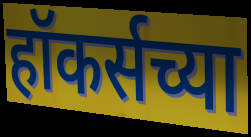
हॉकर्सच्या